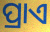
ପ୍ରାଏ